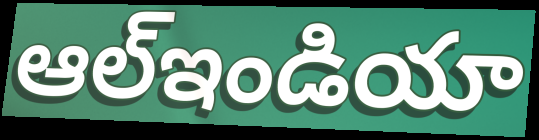
ఆల్ఇండియా